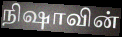
நிஷாவின்